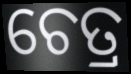
ଚେତ୍ର